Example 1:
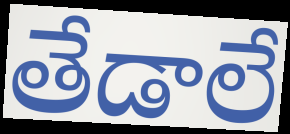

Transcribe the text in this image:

తేడాలే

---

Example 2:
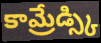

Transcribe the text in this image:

కామ్రేడ్స్కి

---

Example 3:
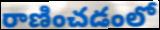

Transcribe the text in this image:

రాణించడంలో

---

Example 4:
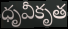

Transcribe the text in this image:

ధృవీకృత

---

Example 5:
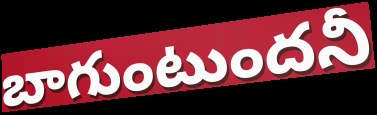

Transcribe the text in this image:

బాగుంటుందనీ